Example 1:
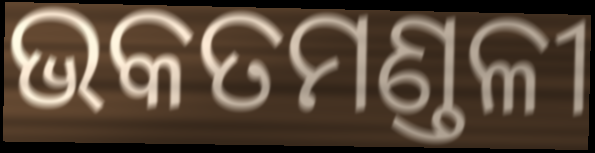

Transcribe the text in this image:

ଭକତମଣ୍ଡଳୀ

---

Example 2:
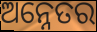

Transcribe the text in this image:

ଅନ୍ନେତର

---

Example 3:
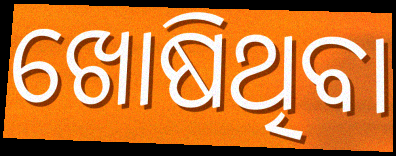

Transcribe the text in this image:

ଖୋଷିଥିବା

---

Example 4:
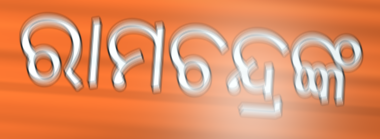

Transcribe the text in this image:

ରାମଚନ୍ଦ୍ରଙ୍କ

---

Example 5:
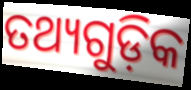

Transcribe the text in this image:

ତଥ୍ୟଗୁଡ଼ିକ